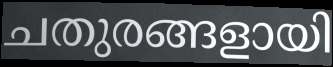
ചതുരങ്ങളായി